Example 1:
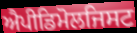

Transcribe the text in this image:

ਐਪੀਡਿਮੋਲਜਿਸਟ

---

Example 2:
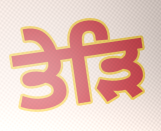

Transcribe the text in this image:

ਤੇੜਿ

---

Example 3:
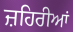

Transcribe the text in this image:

ਜ਼ਹਿਰੀਆਂ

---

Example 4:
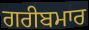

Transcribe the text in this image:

ਗਰੀਬਮਾਰ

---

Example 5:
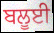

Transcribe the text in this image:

ਬਲੂਈ